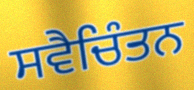
ਸਵੈਚਿੰਤਨ